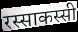
रस्साकस्सी